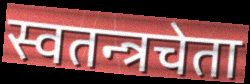
स्वतन्त्रचेता